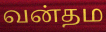
வன்தம